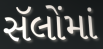
સૅલોંમાં